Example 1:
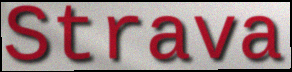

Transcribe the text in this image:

Strava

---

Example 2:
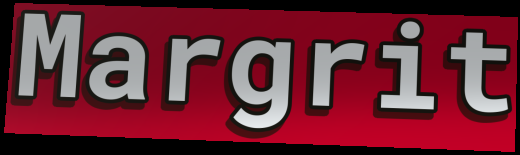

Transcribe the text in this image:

Margrit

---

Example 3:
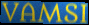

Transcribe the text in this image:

VAMSI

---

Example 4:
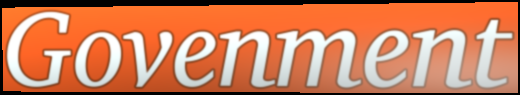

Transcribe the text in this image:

Govenment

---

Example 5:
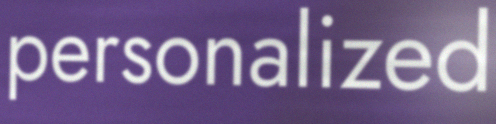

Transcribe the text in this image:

personalized